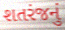
શતરંજનું